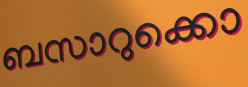
ബസാറുക്കൊ